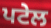
ਪਟੇਲ